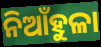
ନିଆଁହୁଳା